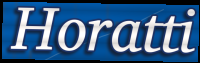
Horatti